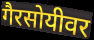
गैरसोयीवर